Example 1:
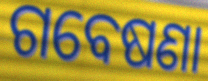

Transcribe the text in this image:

ଗବେଷଣା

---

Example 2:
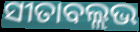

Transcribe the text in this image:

ସୀତାବଲ୍ଲଭ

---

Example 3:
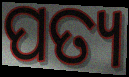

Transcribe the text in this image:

ପତ୍ୟ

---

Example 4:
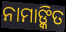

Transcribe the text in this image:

ନାମାଙ୍କିତ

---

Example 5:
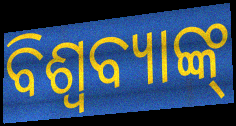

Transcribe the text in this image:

ବିଶ୍ବବ୍ୟାଙ୍କ୍